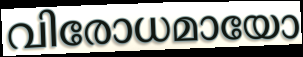
വിരോധമായോ